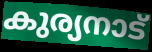
കുര്യനാട്